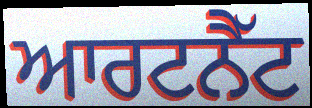
ਆਰਟਨੈੱਟ